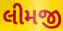
લીમજી